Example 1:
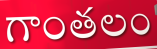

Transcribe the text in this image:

గాంతలం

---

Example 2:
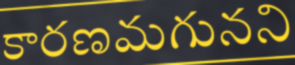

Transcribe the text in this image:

కారణమగునని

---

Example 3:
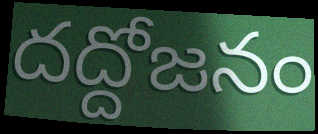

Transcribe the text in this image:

దద్దోజనం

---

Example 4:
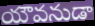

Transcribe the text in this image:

యౌవనుడా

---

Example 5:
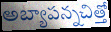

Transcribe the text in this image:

అబ్యాపన్నచిత్తో